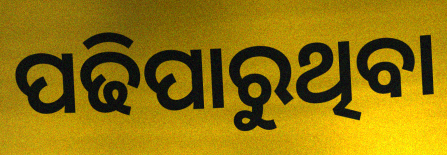
ପଢିପାରୁଥିବା